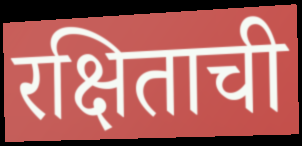
रक्षिताची